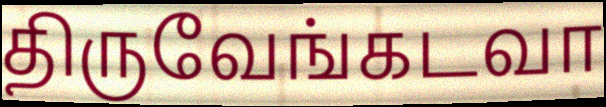
திருவேங்கடவா